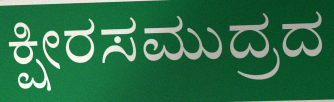
ಕ್ಷೀರಸಮುದ್ರದ